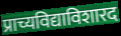
प्राच्यविद्याविशारद